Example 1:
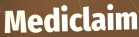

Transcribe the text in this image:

Mediclaim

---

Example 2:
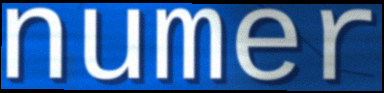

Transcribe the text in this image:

numer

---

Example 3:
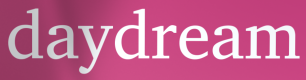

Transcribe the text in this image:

daydream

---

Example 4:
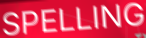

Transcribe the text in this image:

SPELLING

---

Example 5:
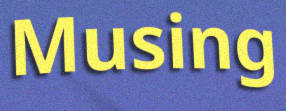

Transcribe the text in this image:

Musing